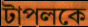
টাপলকে